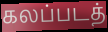
கலப்படத்